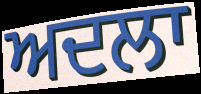
ਅਦਲਾ